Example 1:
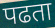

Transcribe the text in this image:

पढता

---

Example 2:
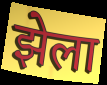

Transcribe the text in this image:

झेला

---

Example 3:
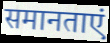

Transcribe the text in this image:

समानताएं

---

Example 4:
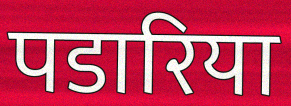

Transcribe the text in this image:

पडारिया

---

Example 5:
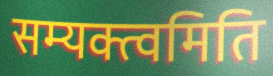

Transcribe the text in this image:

सम्यक्त्वमिति